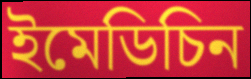
ইমেডিচিন